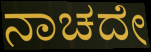
ನಾಚದೇ